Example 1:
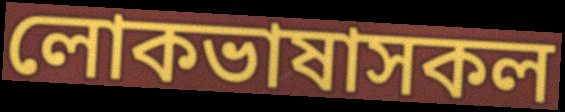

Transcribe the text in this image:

লোকভাষাসকল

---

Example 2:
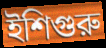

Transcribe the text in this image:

ইশিগুরু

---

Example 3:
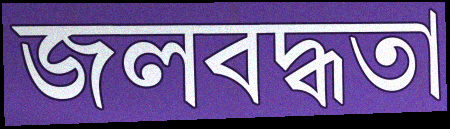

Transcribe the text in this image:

জলবদ্ধতা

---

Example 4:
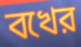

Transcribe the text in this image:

বখের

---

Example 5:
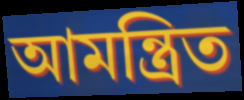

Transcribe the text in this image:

আমন্ত্রিত